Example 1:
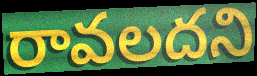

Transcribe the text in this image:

రావలదని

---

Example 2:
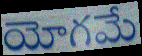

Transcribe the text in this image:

యోగమే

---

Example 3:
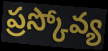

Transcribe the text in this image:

ప్రస్కోవ్య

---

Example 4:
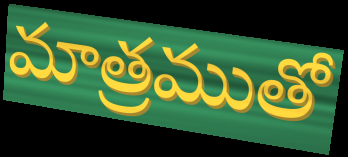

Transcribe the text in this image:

మాత్రముతో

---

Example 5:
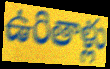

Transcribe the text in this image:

ఉరితాళ్లు